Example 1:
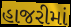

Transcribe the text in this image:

હાજરીમાં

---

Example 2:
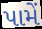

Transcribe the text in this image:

પામેં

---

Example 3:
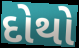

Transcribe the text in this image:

દોથો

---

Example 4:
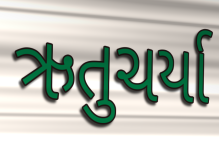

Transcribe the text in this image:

ઋતુચર્યા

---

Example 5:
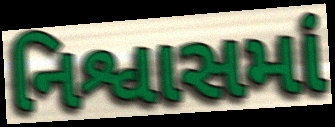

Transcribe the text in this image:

નિશ્વાસમાં